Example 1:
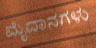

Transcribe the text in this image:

ಮೈದಾನಗಳು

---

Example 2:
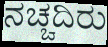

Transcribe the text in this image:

ನಚ್ಚದಿರು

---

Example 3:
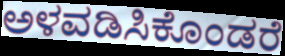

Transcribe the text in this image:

ಅಳವಡಿಸಿಕೊಂಡರೆ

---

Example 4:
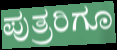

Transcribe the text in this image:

ಪುತ್ರರಿಗೂ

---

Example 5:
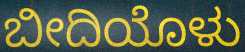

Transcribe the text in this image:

ಬೀದಿಯೊಳು